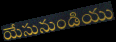
యేసునుండియు